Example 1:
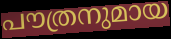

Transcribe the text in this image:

പൗത്രനുമായ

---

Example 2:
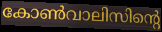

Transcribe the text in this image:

കോൺവാലിസിന്റെ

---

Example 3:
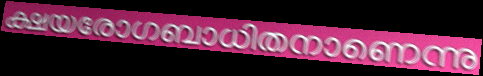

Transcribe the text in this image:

ക്ഷയരോഗബാധിതനാണെന്നു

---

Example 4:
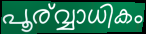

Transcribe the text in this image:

പൂര്വ്വാധികം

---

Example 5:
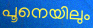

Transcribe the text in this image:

പൂനെയിലും